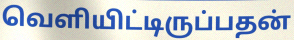
வெளியிட்டிருப்பதன்